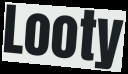
Looty